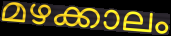
മഴക്കാലം